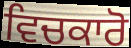
ਵਿਚਕਾਰੋ